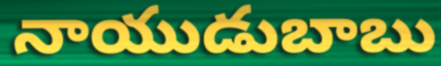
నాయుడుబాబు